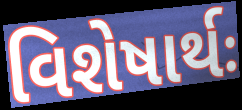
વિશેષાર્થઃ